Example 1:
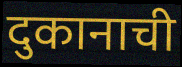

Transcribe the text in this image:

दुकानाची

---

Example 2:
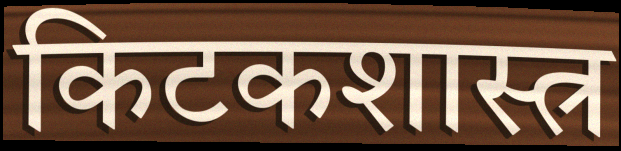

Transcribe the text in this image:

किटकशास्‍त्र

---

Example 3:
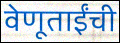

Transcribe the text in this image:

वेणूताईंची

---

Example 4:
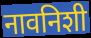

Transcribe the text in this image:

नावनिशी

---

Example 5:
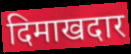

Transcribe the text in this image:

दिमाखदार